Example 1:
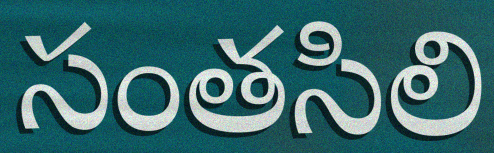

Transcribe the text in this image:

సంతసిలి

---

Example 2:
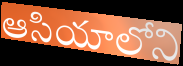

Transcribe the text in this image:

ఆసియాలోని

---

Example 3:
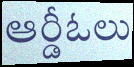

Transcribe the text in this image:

ఆర్డీఓలు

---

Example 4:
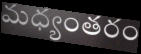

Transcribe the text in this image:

మధ్యంతరం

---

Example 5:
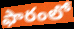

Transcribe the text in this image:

ఫారంలో